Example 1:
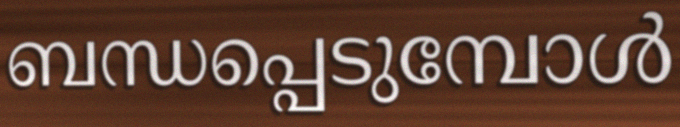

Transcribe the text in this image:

ബന്ധപ്പെടുമ്പോൾ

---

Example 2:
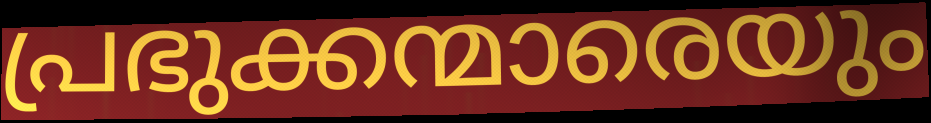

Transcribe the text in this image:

പ്രഭുക്കന്മാരെയും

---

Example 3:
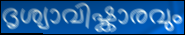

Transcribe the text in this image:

ദൃശ്യാവിഷ്കാരവും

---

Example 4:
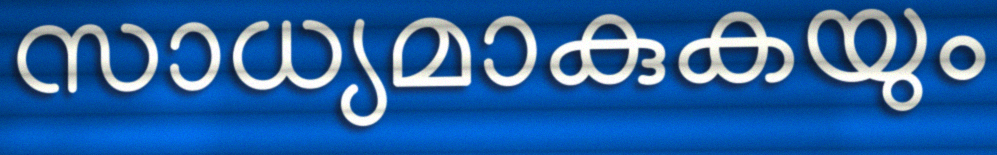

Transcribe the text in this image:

സാധ്യമാകുകയും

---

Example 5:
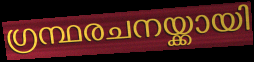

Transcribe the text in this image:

ഗ്രന്ഥരചനയ്ക്കായി